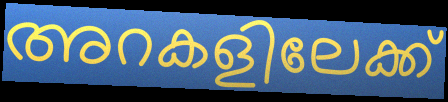
അറകളിലേക്ക്